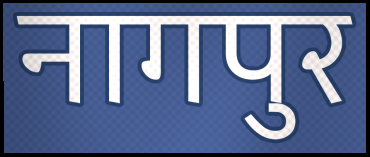
नागपुर